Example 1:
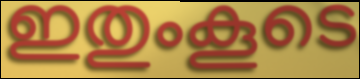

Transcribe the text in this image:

ഇതുംകൂടെ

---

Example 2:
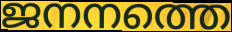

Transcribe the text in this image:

ജനനത്തെ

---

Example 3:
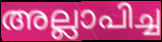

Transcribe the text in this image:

അല്ലാപിച്ച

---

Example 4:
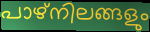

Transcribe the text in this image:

പാഴ്നിലങ്ങളും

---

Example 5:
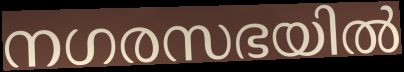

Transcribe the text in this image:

നഗരസഭയിൽ